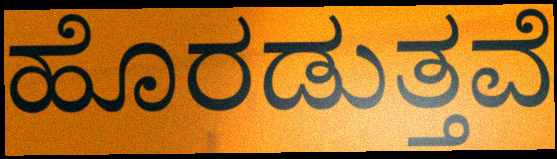
ಹೊರಡುತ್ತವೆ